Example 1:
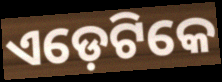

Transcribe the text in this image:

ଏଡ଼େଟିକେ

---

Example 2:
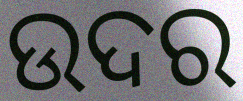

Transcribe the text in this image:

ଉଦର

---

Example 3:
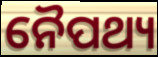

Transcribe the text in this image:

ନୈପଥ୍ୟ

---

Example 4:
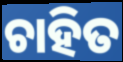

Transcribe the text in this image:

ଚାହିତ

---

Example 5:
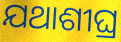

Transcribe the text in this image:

ଯଥାଶୀଘ୍ର